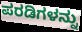
ಪರಡಿಗಳನ್ನು